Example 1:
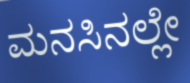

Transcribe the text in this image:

ಮನಸಿನಲ್ಲೇ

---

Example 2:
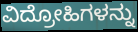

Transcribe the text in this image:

ವಿದ್ರೋಹಿಗಳನ್ನು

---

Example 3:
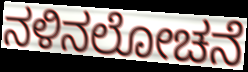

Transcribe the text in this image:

ನಳಿನಲೋಚನೆ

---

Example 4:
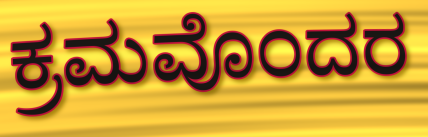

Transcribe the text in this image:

ಕ್ರಮವೊಂದರ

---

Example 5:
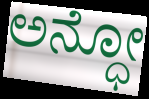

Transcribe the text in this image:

ಅನ್ಧೋ